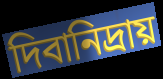
দিবানিদ্রায়